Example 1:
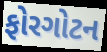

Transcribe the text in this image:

ફોરગોટન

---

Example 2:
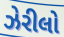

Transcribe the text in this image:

ઝેરીલો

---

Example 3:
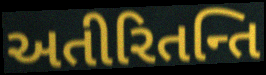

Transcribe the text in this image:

અતીરિતન્તિ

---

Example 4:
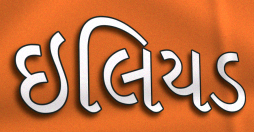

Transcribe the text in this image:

ઇલિયડ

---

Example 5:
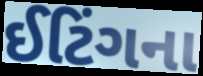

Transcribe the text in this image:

ઈટિંગના